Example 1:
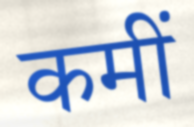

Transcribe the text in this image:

कमीं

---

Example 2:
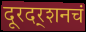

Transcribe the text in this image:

दूरदर्शनचं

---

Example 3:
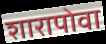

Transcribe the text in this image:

शारापोवा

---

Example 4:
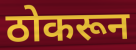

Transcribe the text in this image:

ठोकरून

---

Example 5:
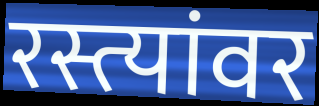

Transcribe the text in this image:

रस्त्यांवर